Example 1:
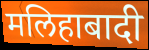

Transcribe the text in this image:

मलिहाबादी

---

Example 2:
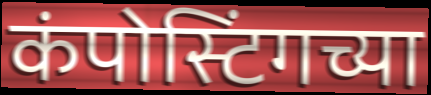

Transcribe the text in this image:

कंपोस्टिंगच्या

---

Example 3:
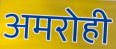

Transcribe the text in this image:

अमरोही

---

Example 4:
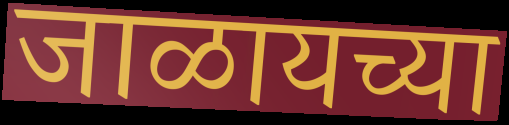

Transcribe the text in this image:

जाळायच्या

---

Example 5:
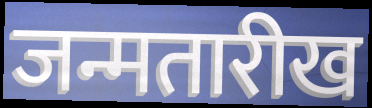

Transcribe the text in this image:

जन्मतारीख